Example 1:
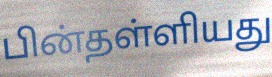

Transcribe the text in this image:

பின்தள்ளியது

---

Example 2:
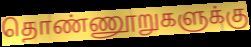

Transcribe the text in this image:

தொண்ணூறுகளுக்கு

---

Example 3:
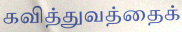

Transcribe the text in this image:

கவித்துவத்தைக்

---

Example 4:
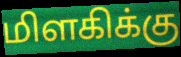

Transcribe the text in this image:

மிளகிக்கு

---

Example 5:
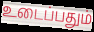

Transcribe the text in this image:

உடைப்பதும்